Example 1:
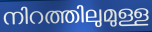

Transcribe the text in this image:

നിറത്തിലുമുള്ള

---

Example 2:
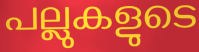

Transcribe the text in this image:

പല്ലുകളുടെ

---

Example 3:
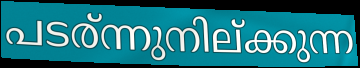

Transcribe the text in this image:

പടര്ന്നുനില്ക്കുന്ന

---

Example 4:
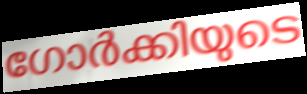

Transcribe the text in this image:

ഗോർക്കിയുടെ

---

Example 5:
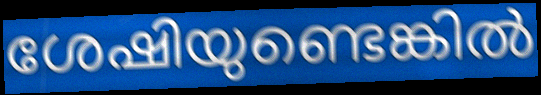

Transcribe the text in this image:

ശേഷിയുണ്ടെങ്കിൽ